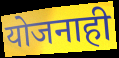
योजनाही